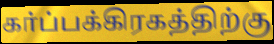
கர்ப்பக்கிரகத்திற்கு